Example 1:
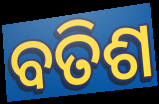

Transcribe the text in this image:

ବତିଶ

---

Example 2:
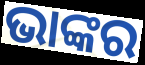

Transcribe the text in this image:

ଭାଙ୍କର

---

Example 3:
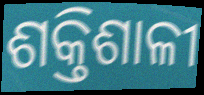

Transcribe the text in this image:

ଶକ୍ତିଶାଳୀ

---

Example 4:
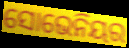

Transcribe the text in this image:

ସୋଭେନିୟର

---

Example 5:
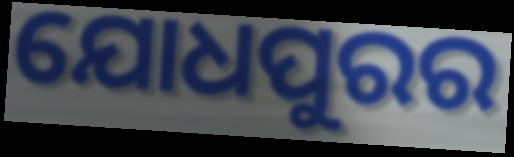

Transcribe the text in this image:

ଯୋଧପୁରର